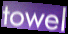
towel